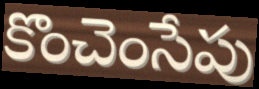
కొంచెంసేపు